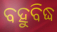
ବହୁବିଦ୍ଧ